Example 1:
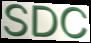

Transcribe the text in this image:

SDC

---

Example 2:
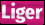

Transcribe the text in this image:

Liger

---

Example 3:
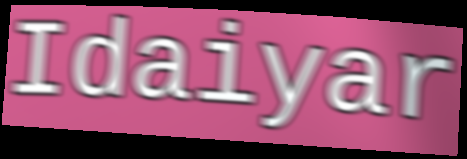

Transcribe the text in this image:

Idaiyar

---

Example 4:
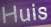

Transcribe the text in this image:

Huis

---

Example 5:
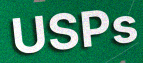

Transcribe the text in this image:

USPs